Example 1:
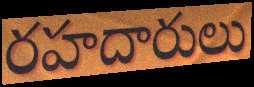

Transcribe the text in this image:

రహదారులు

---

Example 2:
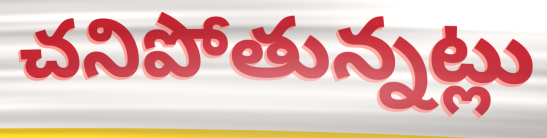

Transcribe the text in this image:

చనిపోతున్నట్లు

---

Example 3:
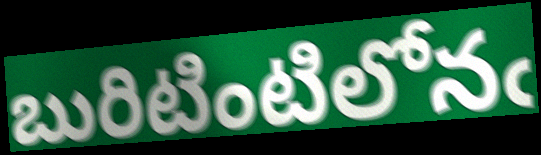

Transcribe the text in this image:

బురిటింటిలోనఁ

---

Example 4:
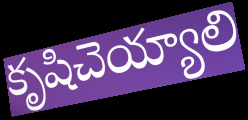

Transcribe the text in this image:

కృషిచెయ్యాలి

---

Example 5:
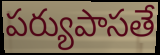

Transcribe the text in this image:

పర్యుపాసతే